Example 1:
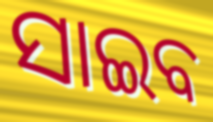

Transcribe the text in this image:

ସାଇବ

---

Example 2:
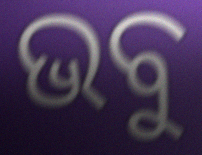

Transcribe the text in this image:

ଭବୁ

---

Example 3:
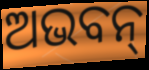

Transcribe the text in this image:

ଅଭବନ୍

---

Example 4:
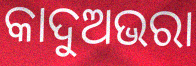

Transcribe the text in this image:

କାଦୁଅଭରା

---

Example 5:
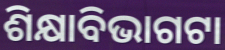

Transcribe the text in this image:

ଶିକ୍ଷାବିଭାଗଟା